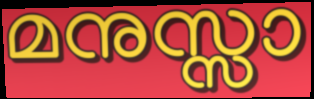
മനുസ്സാ